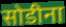
सोडीना